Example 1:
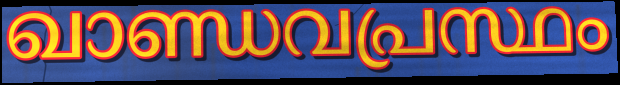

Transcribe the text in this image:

ഖാണ്ഡവപ്രസ്ഥം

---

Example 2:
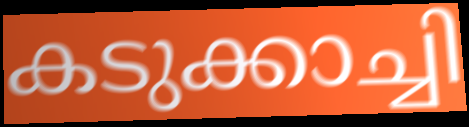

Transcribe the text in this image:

കടുക്കാച്ചി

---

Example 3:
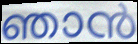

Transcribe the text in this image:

ഞാൻ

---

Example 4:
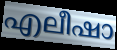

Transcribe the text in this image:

എലീഷാ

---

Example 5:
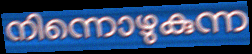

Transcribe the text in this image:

നിന്നൊഴുകുന്ന